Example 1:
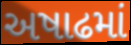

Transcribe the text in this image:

અષાઢમાં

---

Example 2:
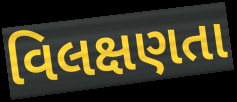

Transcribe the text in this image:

વિલક્ષણતા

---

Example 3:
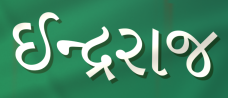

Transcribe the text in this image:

ઈન્દ્રરાજ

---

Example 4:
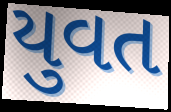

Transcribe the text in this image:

યુવત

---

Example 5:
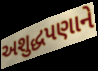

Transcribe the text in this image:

અશુદ્ધપણાને